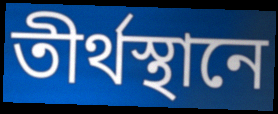
তীর্থস্থানে